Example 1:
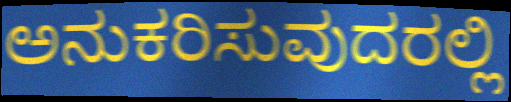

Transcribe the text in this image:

ಅನುಕರಿಸುವುದರಲ್ಲಿ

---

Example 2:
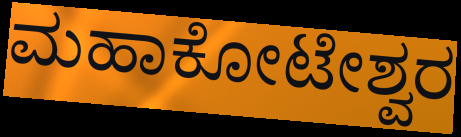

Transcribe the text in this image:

ಮಹಾಕೋಟೇಶ್ವರ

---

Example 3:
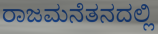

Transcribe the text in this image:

ರಾಜಮನೆತನದಲ್ಲಿ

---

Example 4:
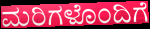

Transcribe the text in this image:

ಮರಿಗಳೊಂದಿಗೆ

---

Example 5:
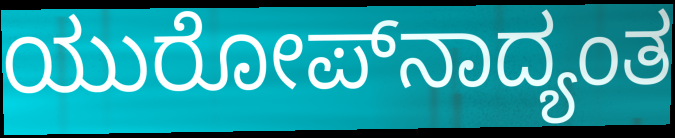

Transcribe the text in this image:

ಯುರೋಪ್‌ನಾದ್ಯಂತ